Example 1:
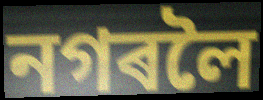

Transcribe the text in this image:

নগৰলৈ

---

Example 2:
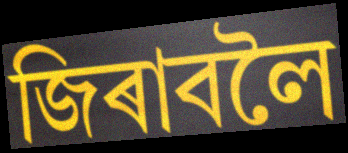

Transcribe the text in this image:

জিৰাবলৈ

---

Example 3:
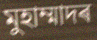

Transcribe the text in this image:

মুহাম্মাদৰ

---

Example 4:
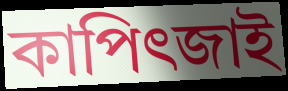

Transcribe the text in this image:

কাপিৎজাই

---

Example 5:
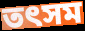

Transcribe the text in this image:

তৎসম